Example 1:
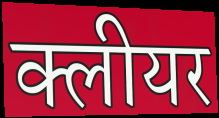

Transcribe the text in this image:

क्लीयर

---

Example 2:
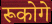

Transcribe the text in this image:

रूकोगे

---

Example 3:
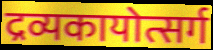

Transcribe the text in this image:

द्रव्यकायोत्सर्ग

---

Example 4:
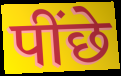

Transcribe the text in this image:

पींछे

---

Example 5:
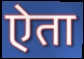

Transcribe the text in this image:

ऐता